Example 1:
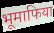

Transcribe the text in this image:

भूमाफिया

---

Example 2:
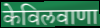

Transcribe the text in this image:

केविलवाणा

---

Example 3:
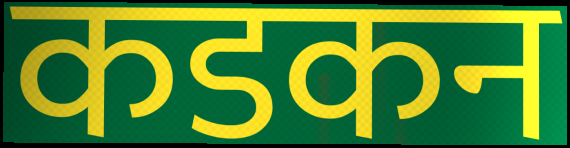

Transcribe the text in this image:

कडकन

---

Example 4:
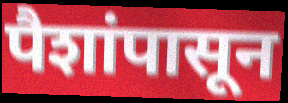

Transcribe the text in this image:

पैशांपासून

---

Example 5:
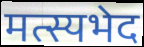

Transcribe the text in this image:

मत्स्यभेद